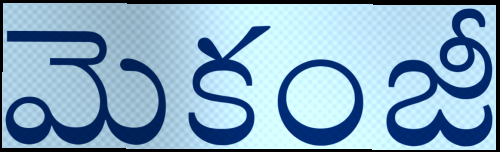
మెకంజీ